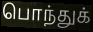
பொந்துக்